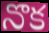
నొక